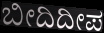
ಬೀದಿದೀಪ